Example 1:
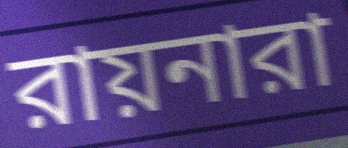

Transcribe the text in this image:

রায়নারা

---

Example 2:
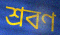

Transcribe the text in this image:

শ্রবণ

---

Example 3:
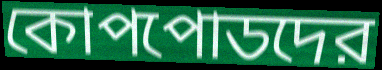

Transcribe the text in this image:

কোপপোডদের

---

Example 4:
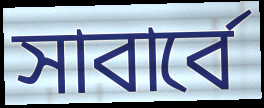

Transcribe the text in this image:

সাবার্বে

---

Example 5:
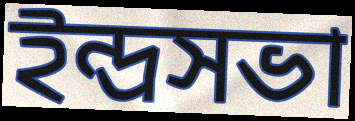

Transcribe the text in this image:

ইন্দ্রসভা